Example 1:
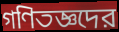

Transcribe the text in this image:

গণিতজ্ঞদের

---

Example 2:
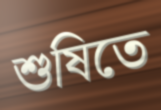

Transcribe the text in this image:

শুষিতে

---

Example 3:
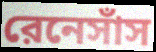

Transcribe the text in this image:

রেনেসাঁস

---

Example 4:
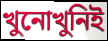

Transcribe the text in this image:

খুনোখুনিই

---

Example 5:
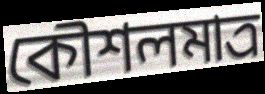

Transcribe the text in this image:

কৌশলমাত্র